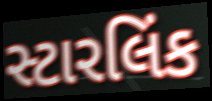
સ્ટારલિંક